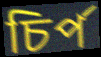
চির্প